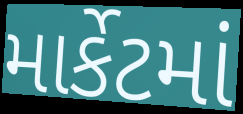
માર્કેટમાં